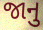
જાનુ